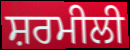
ਸ਼ਰਮੀਲੀ